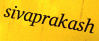
sivaprakash